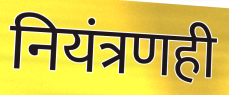
नियंत्रणही